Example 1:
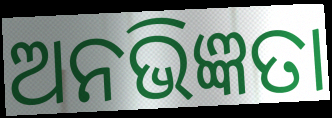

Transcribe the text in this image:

ଅନଭିଜ୍ଞତା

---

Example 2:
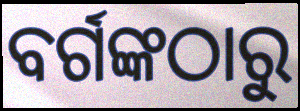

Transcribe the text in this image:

ବର୍ଗଙ୍କଠାରୁ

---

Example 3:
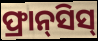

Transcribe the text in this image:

ଫ୍ରାନ୍‌ସିସ୍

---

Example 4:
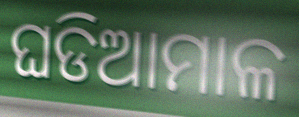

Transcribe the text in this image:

ଘଡିଆମାଳ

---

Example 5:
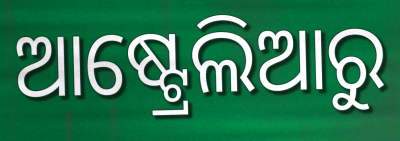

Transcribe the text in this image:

ଆଷ୍ଟ୍ରେଲିଆରୁ